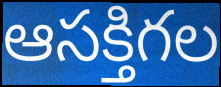
ఆసక్తిగల